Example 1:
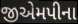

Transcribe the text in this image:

જીએમપીના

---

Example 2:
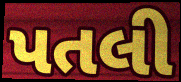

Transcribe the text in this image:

પતલી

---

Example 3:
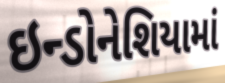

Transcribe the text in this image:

ઇન્ડોનેશિયામાં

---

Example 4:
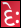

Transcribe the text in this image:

દેઃ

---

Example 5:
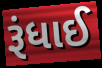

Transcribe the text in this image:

રૂંધાઈ